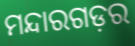
ମନ୍ଦାରଗଡ଼ର